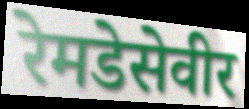
रेमडेसेवीर